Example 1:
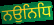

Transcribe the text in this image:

ਨਉਨਿਧਿ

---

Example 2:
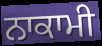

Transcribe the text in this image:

ਨਾਕਾਮੀ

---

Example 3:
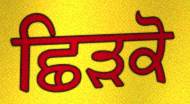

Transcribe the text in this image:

ਛਿੜਕੋ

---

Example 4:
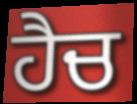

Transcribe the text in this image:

ਹੈਚ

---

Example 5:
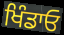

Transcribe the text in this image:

ਖਿੰਡਾਓ